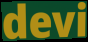
devi